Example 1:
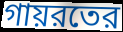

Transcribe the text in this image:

গায়রতের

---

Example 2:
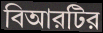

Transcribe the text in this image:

বিআরটির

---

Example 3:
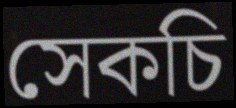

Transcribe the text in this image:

সেকচি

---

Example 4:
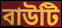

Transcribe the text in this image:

বাউটি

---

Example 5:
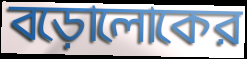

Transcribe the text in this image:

বড়োলোকের